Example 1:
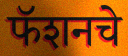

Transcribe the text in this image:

फॅशनचे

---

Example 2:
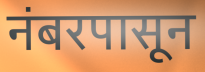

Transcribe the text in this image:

नंबरपासून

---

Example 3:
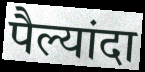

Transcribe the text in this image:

पैल्यांदा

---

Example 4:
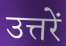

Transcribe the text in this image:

उत्तरें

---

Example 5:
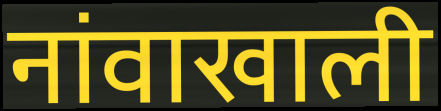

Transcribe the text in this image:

नांवाखाली